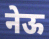
नेऊ